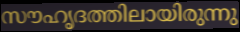
സൗഹൃദത്തിലായിരുന്നു